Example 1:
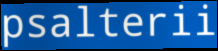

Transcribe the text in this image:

psalterii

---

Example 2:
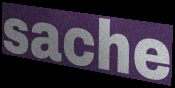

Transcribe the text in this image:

sache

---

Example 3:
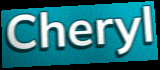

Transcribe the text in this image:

Cheryl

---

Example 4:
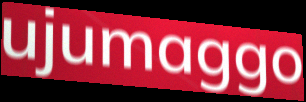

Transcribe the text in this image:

ujumaggo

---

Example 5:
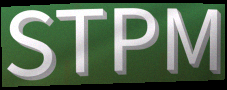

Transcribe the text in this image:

STPM